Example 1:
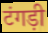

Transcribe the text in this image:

टंगड़ी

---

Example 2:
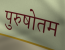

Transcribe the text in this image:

पुरुषोतम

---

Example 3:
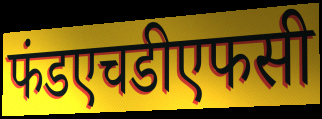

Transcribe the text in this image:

फंडएचडीएफसी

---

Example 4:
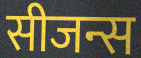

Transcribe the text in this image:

सीजन्स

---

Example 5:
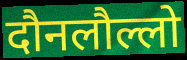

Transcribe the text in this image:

दौनलौल्लो